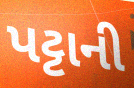
પટ્ટાની